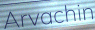
Arvachin